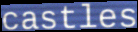
castles